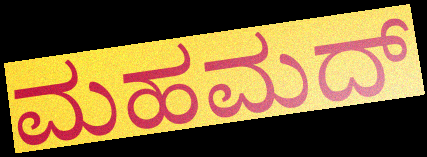
ಮಹಮದ್